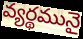
వ్యర్థమునై